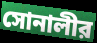
সোনালীর